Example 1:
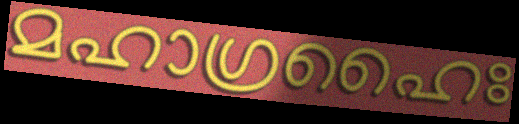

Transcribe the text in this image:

മഹാഗ്രഹൈഃ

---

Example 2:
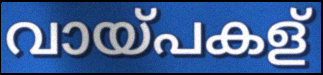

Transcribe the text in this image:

വായ്പകള്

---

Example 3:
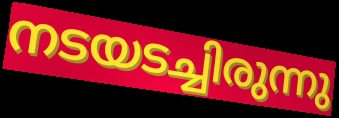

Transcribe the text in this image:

നടയടച്ചിരുന്നു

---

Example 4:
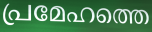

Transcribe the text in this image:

പ്രമേഹത്തെ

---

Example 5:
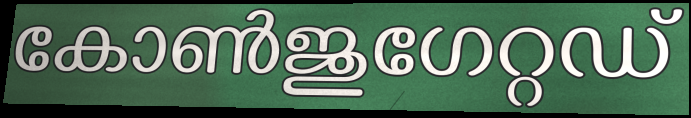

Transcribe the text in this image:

കോൺജുഗേറ്റഡ്